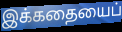
இக்கதையைப்